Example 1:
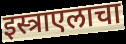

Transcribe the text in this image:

इस्त्राएलाचा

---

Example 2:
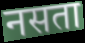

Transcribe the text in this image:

नसता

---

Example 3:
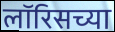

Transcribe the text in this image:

लॉरिसच्या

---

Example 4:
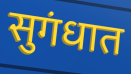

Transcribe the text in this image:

सुगंधात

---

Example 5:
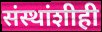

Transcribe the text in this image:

संस्थांशीही